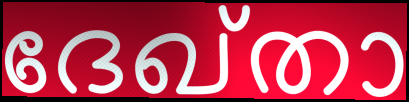
ദേഖ്താ